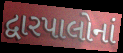
દ્વારપાલોનાં